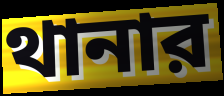
থানার